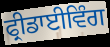
ਫ੍ਰੀਡਾਈਵਿੰਗ